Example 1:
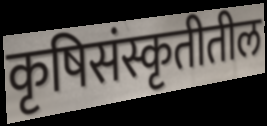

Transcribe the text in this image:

कृषिसंस्कृतीतील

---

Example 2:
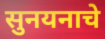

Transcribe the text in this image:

सुनयनाचे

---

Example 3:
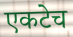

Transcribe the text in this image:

एकटेच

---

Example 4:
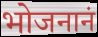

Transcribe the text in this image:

भोजनानं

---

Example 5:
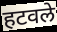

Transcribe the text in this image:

हटवले